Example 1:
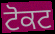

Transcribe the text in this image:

ਟੋਕਟ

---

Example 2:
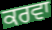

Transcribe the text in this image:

ਕਰਵਾ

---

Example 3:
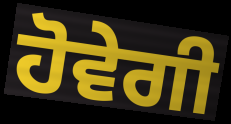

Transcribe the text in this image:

ਹੋਵੇਗੀ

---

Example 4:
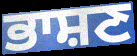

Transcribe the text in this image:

ਭਾਸ਼ਣ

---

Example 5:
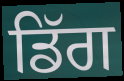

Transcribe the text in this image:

ਡਿੱਗ